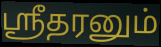
ஸ்ரீதரனும்